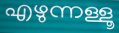
എഴുന്നള്ളൂ